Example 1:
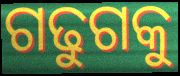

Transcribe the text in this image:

ଗଢୁଗକୁ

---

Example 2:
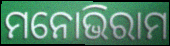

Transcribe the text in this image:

ମନୋଭିରାମ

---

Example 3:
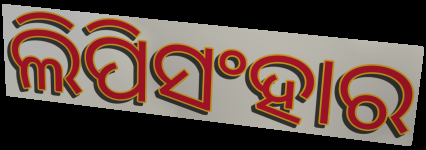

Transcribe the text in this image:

ଲିପିସଂହାର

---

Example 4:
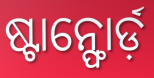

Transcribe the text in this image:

ଷ୍ଟାନ୍ଫୋର୍ଡ଼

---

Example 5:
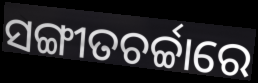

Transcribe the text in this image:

ସଙ୍ଗୀତଚର୍ଚ୍ଚାରେ